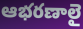
ఆభరణాలై